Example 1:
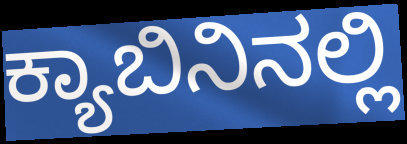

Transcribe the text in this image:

ಕ್ಯಾಬಿನಿನಲ್ಲಿ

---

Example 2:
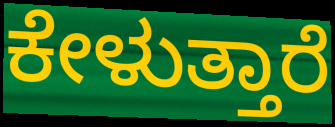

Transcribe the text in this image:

ಕೇಳುತ್ತಾರೆ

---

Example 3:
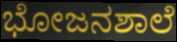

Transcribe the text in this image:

ಭೋಜನಶಾಲೆ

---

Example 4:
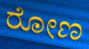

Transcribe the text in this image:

ರೋಣ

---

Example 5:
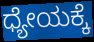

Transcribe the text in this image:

ಧ್ಯೇಯಕ್ಕೆ